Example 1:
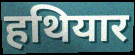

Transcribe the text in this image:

हथियार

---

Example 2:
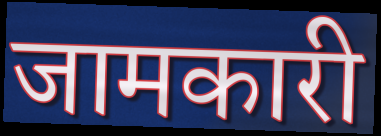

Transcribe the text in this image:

जामकारी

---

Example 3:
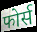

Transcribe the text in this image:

फोर्स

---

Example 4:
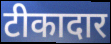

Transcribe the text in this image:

टीकादार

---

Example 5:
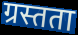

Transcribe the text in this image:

ग्रस्तता